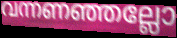
വന്നണഞ്ഞല്ലോ